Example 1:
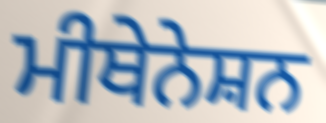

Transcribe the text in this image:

ਮੀਥੇਨੇਸ਼ਨ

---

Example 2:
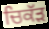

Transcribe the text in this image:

ਚਿਕੱੜ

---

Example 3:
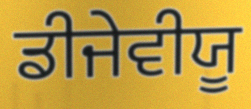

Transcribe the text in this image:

ਡੀਜੇਵੀਯੂ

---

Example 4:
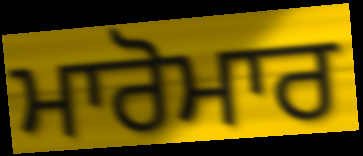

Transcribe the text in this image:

ਮਾਰੋਮਾਰ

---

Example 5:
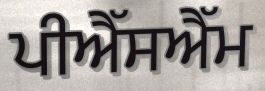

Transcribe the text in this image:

ਪੀਐੱਸਐੱਮ